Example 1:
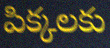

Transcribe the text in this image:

పిక్కలకు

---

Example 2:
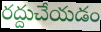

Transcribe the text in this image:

రద్దుచేయడం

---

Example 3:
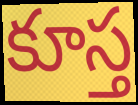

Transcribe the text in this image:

కూస్త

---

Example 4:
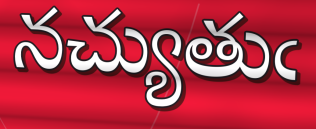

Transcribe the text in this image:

నచ్యుతుఁ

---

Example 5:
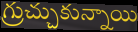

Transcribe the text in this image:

గ్రుచ్చుకున్నాయి